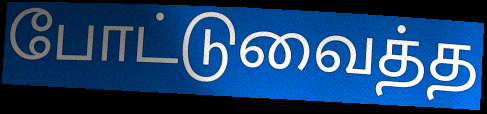
போட்டுவைத்த